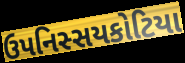
ઉપનિસ્સયકોટિયા